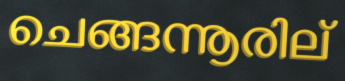
ചെങ്ങന്നൂരില്